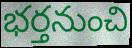
భర్తనుంచి